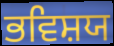
ਭਵਿਸ਼ਯ